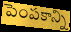
పెంపకాన్ని